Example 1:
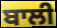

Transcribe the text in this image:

ਬਾਲੀ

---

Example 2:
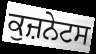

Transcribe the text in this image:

ਕੁਜ਼ਨੇਟਸ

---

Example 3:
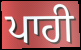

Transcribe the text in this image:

ਪਾਹੀ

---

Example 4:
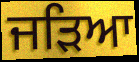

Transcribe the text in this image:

ਜੜਿਆ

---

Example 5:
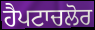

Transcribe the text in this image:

ਹੈਪਟਾਚਲੋਰ